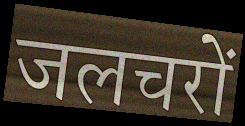
जलचरों